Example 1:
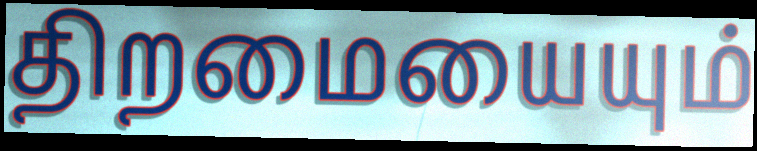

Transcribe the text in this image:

திறமையையும்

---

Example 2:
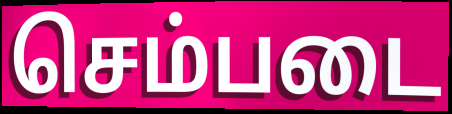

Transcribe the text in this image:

செம்படை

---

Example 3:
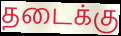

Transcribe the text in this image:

தடைக்கு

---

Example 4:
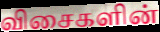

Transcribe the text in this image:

விசைகளின்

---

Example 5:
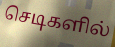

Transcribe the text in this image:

செடிகளில்